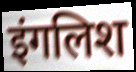
इंगलिश